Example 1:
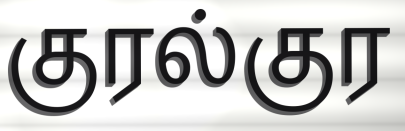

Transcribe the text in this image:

குரல்குர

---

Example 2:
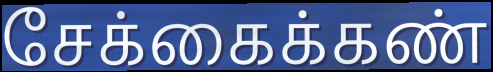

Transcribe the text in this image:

சேக்கைக்கண்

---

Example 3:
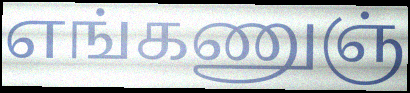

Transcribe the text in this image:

எங்கணுஞ்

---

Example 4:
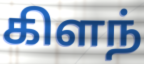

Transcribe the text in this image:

கிளந்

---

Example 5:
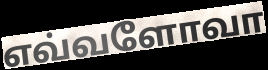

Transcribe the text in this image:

எவ்வளோவா